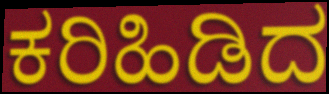
ಕರಿಹಿಡಿದ